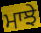
ਮਾਝੇ